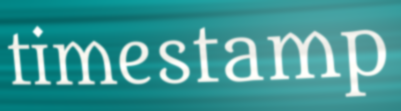
timestamp